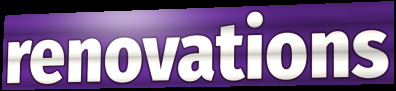
renovations